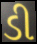
ડી